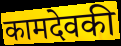
कामदेवकी